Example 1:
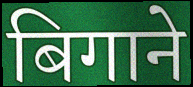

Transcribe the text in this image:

बिगाने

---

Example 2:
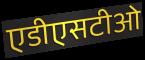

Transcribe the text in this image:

एडीएसटीओ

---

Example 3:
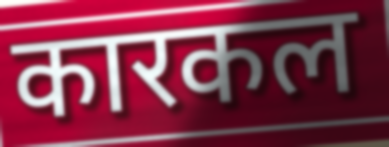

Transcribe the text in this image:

कारकल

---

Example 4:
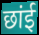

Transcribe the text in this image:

छांई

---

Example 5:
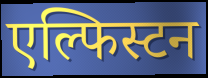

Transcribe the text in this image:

एल्फिस्टन